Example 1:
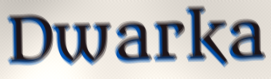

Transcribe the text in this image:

Dwarka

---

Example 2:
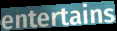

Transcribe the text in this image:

entertains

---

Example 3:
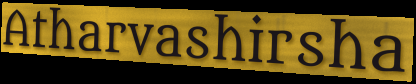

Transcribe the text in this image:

Atharvashirsha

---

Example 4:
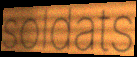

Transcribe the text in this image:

soldats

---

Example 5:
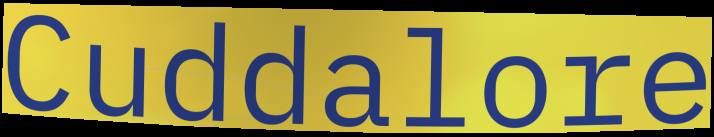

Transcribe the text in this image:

Cuddalore